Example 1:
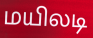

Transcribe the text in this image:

மயிலடி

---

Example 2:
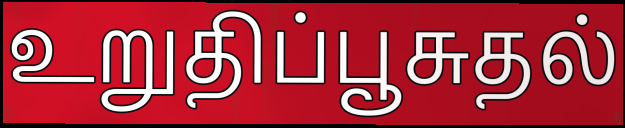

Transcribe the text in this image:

உறுதிப்பூசுதல்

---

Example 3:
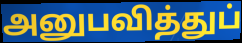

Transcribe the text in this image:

அனுபவித்துப்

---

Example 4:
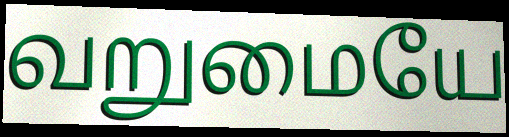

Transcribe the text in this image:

வறுமையே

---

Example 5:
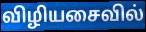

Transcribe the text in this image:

விழியசைவில்